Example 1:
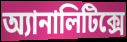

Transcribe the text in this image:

অ্যানালিটিক্সে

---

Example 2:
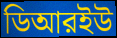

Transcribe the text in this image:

ডিআরইউ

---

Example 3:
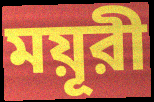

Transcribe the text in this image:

ময়ূরী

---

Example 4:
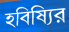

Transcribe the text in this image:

হবিষ্যির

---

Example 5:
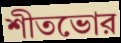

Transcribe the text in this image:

শীতভোর